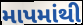
માપમાંથી